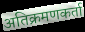
अतिक्रमणकर्ता